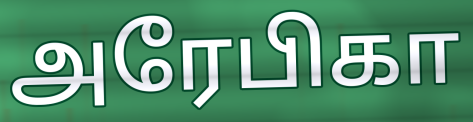
அரேபிகா